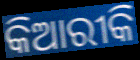
କିଆରୀକି